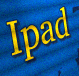
Ipad